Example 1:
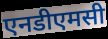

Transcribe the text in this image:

एनडीएमसी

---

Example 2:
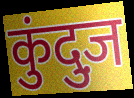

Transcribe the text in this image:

कुंदुज़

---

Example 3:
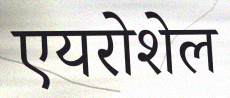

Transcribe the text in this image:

एयरोशेल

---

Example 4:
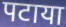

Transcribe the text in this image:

पटाया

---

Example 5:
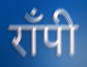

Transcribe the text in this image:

राँपी